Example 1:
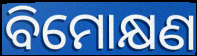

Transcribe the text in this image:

ବିମୋକ୍ଷଣ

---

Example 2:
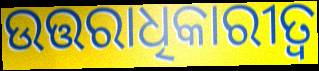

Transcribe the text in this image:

ଉତ୍ତରାଧିକାରୀତ୍ଵ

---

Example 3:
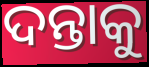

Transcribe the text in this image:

ଦନ୍ତାକୁ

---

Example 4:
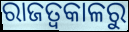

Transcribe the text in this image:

ରାଜତ୍ଵକାଳରୁ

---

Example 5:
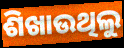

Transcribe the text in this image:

ଶିଖାଉଥିଲୁ